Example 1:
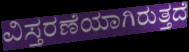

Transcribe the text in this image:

ವಿಸ್ತರಣೆಯಾಗಿರುತ್ತದೆ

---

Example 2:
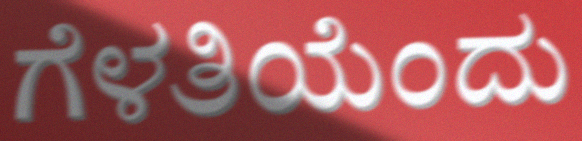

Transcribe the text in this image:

ಗೆಳತಿಯೆಂದು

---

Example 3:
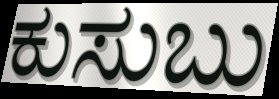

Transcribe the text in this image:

ಕುಸುಬು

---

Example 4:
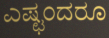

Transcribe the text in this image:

ಎಷ್ಟಂದರೂ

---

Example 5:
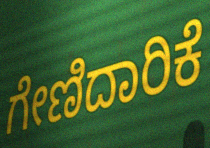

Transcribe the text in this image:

ಗೇಣಿದಾರಿಕೆ